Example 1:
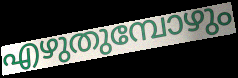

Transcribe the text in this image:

എഴുതുമ്പോഴും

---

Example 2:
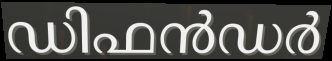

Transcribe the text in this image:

ഡിഫൻഡർ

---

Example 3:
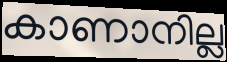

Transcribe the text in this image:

കാണാനില്ല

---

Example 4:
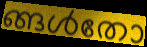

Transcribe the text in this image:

ങ്ങൾതോ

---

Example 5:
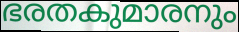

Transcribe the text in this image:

ഭരതകുമാരനും